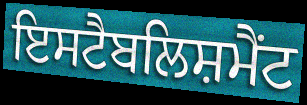
ਇਸਟੈਬਲਿਸ਼ਮੈਂਟ